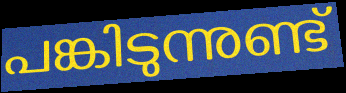
പങ്കിടുന്നുണ്ട്